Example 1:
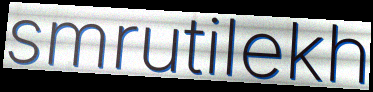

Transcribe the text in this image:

smrutilekh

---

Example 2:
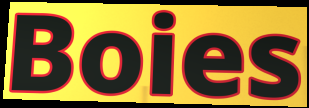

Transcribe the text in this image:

Boies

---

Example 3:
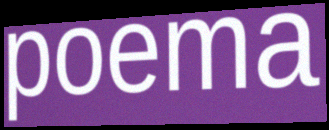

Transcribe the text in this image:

poema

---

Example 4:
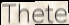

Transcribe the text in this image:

Thete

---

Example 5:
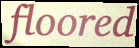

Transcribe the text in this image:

floored